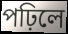
পঢ়িলে